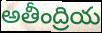
అతీంద్రియ